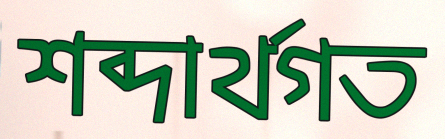
শব্দার্থগত